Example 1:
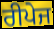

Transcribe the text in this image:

ਰੀਪੇਜ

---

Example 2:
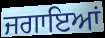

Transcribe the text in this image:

ਜਗਾਇਆਂ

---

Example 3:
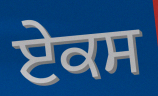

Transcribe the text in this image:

ਏਕਸ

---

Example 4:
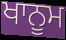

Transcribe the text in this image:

ਖਾਨੂਮ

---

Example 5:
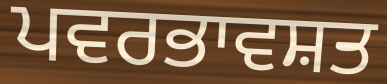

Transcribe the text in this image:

ਪਵਰਭਾਵਸ਼ਤ